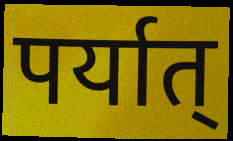
पर्यात्